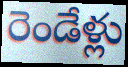
రెండేళ్లు